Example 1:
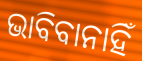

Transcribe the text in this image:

ଭାବିବାନାହିଁ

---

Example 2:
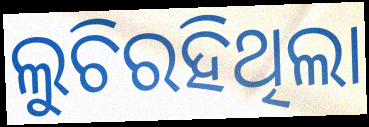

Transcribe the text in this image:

ଲୁଚିରହିଥିଲା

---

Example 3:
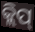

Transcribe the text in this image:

କ୍ଲିପ୍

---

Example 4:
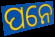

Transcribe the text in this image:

ପନେ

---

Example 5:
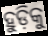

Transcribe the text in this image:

ହୁଡ଼ିକୁ